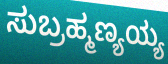
ಸುಬ್ರಹ್ಮಣ್ಯಯ್ಯ